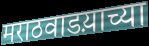
मराठवाडय़ाच्या